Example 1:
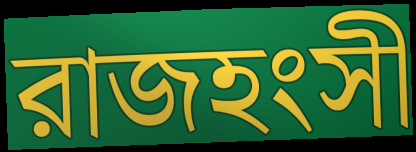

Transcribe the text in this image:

রাজহংসী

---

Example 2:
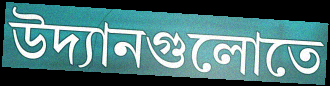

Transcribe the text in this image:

উদ্যানগুলোতে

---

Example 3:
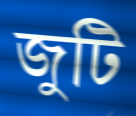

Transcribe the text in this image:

জুটি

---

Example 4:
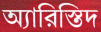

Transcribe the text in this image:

অ্যারিস্তিদ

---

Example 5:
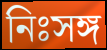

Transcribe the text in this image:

নিঃসঙ্গ